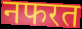
नफरत